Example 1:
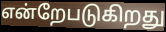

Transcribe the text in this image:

என்றேபடுகிறது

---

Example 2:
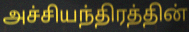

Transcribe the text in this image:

அச்சியந்திரத்தின்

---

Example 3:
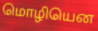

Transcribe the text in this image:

மொழியென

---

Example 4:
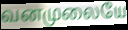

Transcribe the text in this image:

வனமுலையே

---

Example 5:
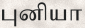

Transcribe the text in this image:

புனியா